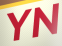
YN